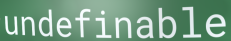
undefinable